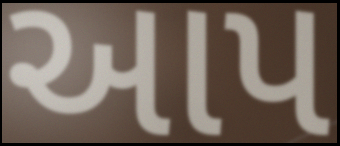
આપ